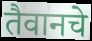
तैवानचे